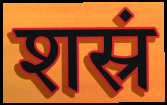
शस्रं